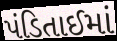
પંડિતાઈમાં